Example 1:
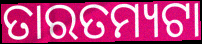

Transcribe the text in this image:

ତାରତମ୍ୟଟା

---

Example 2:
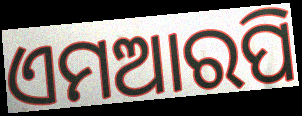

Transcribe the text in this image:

ଏମଆରପି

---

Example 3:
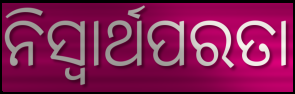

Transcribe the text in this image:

ନିସ୍ଵାର୍ଥପରତା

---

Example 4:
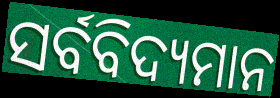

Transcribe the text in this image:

ସର୍ବବିଦ୍ୟମାନ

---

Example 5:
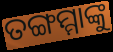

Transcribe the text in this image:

ତଙ୍ଗମ୍ମାଙ୍କୁ